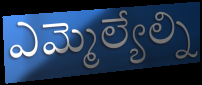
ఎమ్మెల్యేల్ని